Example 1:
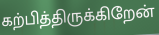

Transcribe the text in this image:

கற்பித்திருக்கிறேன்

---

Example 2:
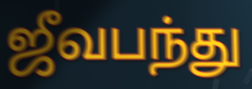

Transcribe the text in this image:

ஜீவபந்து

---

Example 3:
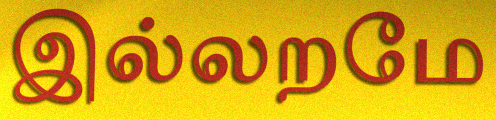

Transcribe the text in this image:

இல்லறமே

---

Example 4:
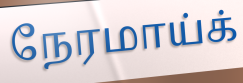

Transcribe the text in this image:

நேரமாய்க்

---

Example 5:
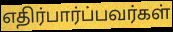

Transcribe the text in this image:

எதிர்பார்ப்பவர்கள்